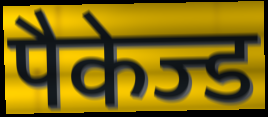
पैकेज्ड